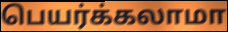
பெயர்க்கலாமா